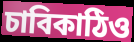
চাবিকাঠিও